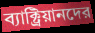
ব্যাক্ট্রিয়ানদের